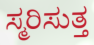
ಸ್ಮರಿಸುತ್ತ